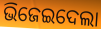
ଭିଜେଇଦେଲା